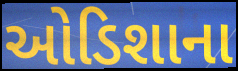
ઓડિશાના